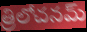
త్రిలోచనమ్